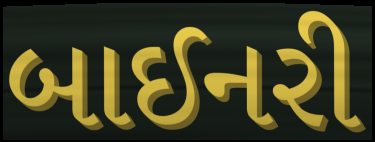
બાઈનરી